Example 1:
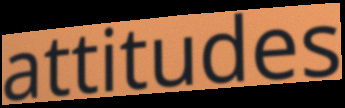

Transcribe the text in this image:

attitudes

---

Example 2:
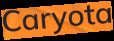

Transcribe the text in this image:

Caryota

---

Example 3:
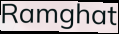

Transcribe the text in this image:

Ramghat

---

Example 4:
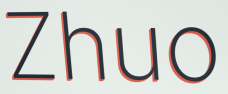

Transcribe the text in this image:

Zhuo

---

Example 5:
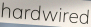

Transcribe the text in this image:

hardwired